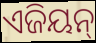
ଏଜିୟନ୍